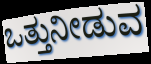
ಒತ್ತುನೀಡುವ